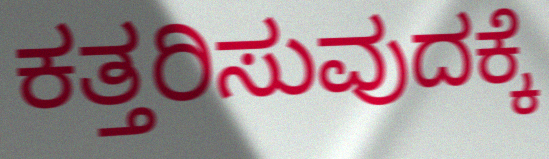
ಕತ್ತರಿಸುವುದಕ್ಕೆ